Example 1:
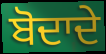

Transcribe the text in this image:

ਬੋਦਾਦੇ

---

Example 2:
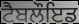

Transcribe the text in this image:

ਟੈਬਲੌਇਡ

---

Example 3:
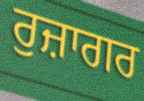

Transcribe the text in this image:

ਰੁਜ਼ਾਗਰ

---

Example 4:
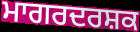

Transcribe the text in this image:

ਮਾਗਰਦਰਸ਼ਕ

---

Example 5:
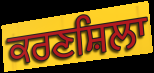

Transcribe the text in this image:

ਕਰਣਸ਼ਿਲਾ